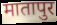
मातापुर